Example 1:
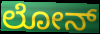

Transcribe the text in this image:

ಲೋನ್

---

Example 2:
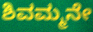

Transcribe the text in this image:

ಶಿವಮ್ಮನೇ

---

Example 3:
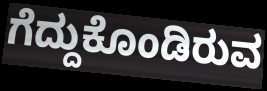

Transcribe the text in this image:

ಗೆದ್ದುಕೊಂಡಿರುವ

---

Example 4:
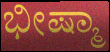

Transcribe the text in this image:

ಭೀಷ್ಮಾ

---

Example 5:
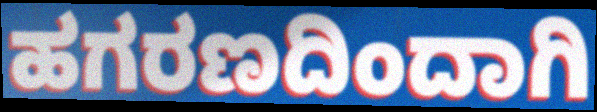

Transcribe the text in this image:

ಹಗರಣದಿಂದಾಗಿ